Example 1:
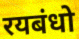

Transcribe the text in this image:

रयबंधो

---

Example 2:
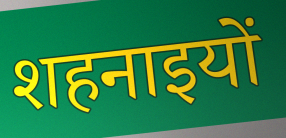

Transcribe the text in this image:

शहनाइयों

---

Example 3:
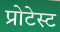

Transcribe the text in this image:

प्रोटेस्ट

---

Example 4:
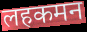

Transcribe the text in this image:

लहकमन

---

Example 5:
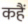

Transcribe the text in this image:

कहैं